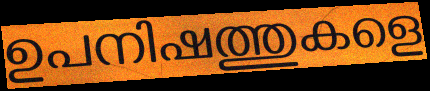
ഉപനിഷത്തുകളെ